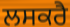
ਲਸਕਰੈ